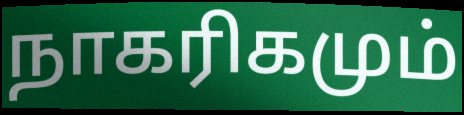
நாகரிகமும்